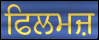
ਫਿਲਮਜ਼